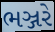
ભઞ્જરે